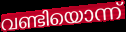
വണ്ടിയൊന്ന്